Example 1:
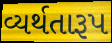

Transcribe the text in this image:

વ્યર્થતારૂપ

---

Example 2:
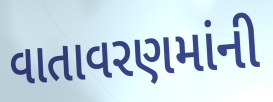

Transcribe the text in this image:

વાતાવરણમાંની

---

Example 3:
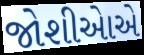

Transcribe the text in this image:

જોશીએાએ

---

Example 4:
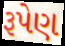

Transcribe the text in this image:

રૂપેણ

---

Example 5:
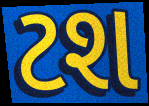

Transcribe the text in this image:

ટશ